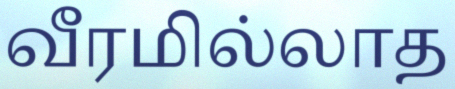
வீரமில்லாத